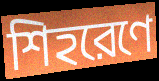
শিহরেণে